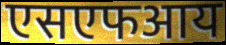
एसएफआय